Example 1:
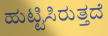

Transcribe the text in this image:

ಹುಟ್ಟಿಸಿರುತ್ತದೆ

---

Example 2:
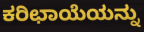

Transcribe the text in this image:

ಕರಿಛಾಯೆಯನ್ನು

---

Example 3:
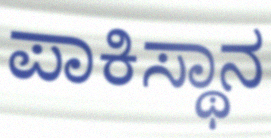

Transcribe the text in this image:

ಪಾಕಿಸ್ಥಾನ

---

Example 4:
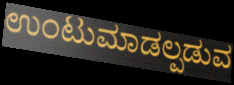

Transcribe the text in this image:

ಉಂಟುಮಾಡಲ್ಪಡುವ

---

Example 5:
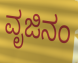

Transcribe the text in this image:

ವೃಜಿನಂ